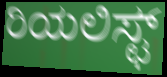
ರಿಯಲಿಸ್ಟ್